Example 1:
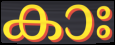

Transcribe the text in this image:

കാഃ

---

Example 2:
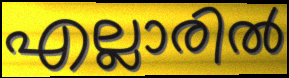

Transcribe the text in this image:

എല്ലാരിൽ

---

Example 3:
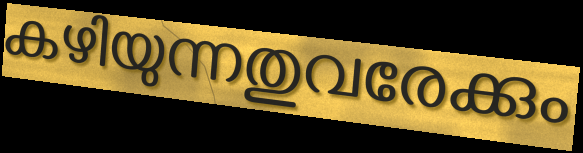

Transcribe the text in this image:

കഴിയുന്നതുവരേക്കും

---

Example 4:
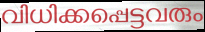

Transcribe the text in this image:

വിധിക്കപ്പെട്ടവരും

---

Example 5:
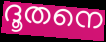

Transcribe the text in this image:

ദൂതനെ